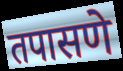
तपासणे